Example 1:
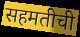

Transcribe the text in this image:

सहमतीची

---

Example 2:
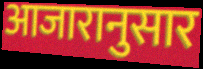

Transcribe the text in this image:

आजारानुसार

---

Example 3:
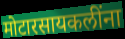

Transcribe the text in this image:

मोटारसायकलींना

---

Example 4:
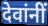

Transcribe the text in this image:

देवांनीं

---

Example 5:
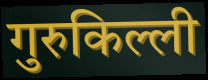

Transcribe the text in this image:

गुरुकिल्ली